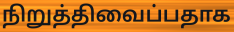
நிறுத்திவைப்பதாக